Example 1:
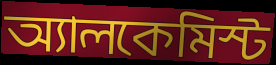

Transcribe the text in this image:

অ্যালকেমিস্ট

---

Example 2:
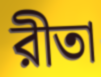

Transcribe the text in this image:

রীতা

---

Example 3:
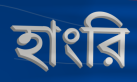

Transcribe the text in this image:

হাংরি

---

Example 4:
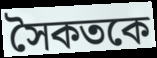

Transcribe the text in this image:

সৈকতকে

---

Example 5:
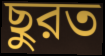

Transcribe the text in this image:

ছুরত